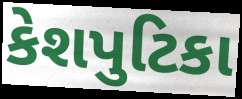
કેશપુટિકા